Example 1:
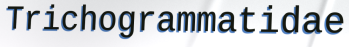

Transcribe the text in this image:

Trichogrammatidae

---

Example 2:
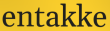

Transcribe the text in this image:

entakke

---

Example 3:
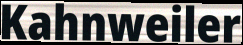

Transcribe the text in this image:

Kahnweiler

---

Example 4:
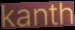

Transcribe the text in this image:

kanth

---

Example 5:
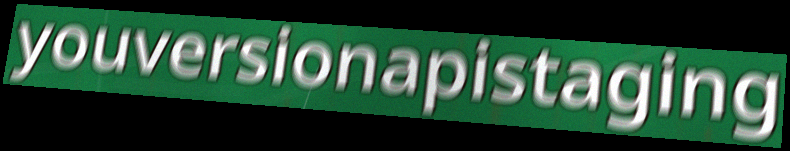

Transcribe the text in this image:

youversionapistaging